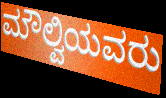
ಮೌಲ್ವಿಯವರು